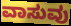
ವಾಸುವು